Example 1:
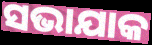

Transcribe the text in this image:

ସଭାଯାକ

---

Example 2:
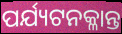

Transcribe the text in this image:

ପର୍ଯ୍ୟଟନକ୍ଳାନ୍ତ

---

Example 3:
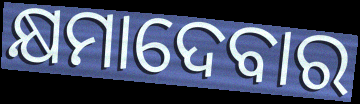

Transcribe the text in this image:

କ୍ଷମାଦେବାର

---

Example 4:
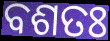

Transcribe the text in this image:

ବଶତଃ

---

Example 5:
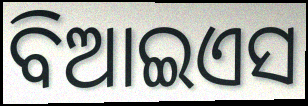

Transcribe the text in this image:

ବିଆଇଏସ